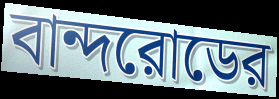
বান্দরোডের